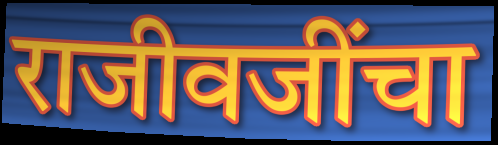
राजीवजींचा